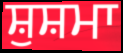
ਸ਼ੁਸ਼ਮਾ